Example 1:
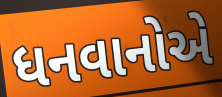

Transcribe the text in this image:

ધનવાનોએ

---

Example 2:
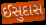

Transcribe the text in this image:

ઈસુદાસ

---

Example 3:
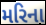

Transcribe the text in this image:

મરિના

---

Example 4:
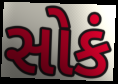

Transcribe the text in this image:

સોકં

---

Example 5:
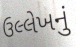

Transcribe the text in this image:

ઉલ્લેખનું